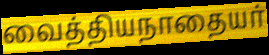
வைத்தியநாதையர்